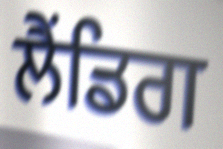
ਲੈਂਡਿਗ